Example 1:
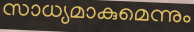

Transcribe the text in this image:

സാധ്യമാകുമെന്നും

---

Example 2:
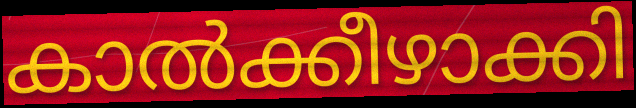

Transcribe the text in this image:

കാൽക്കീഴാക്കി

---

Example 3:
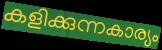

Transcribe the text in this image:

കളിക്കുന്നകാര്യം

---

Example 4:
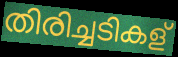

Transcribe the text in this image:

തിരിച്ചടികള്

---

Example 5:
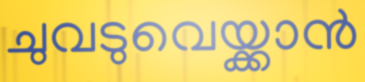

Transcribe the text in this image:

ചുവടുവെയ്ക്കാൻ